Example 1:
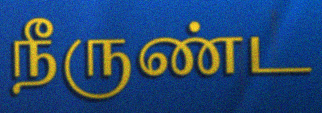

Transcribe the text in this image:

நீருண்ட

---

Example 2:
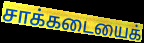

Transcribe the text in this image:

சாக்கடையைக்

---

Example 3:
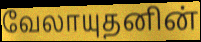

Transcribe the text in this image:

வேலாயுதனின்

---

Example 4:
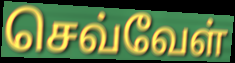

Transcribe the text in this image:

செவ்வேள்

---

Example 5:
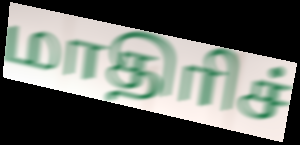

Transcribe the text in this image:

மாதிரிச்